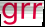
grr